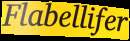
Flabellifer